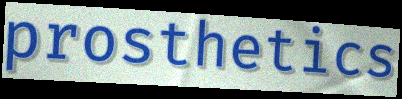
prosthetics